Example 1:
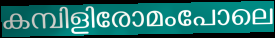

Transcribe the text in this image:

കമ്പിളിരോമംപോലെ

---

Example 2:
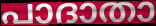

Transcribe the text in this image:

പാദാതാ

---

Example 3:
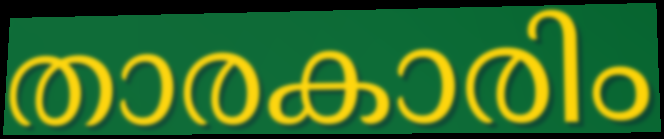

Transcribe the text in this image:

താരകാരിം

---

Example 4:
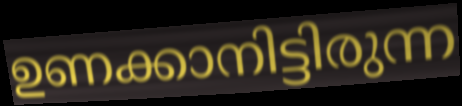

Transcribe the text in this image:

ഉണക്കാനിട്ടിരുന്ന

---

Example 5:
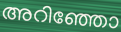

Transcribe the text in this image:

അറിഞ്ഞോ